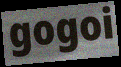
gogoi